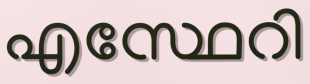
എസ്ഥേറി